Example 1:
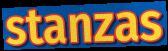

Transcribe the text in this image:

stanzas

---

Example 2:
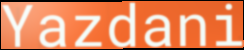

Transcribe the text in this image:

Yazdani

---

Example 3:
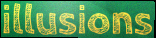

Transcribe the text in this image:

illusions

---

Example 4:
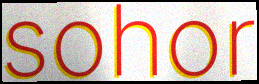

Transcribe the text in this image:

sohor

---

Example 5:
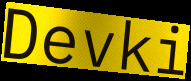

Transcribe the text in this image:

Devki